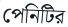
পেনিটির